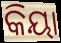
କିୟା